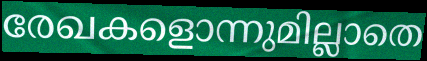
രേഖകളൊന്നുമില്ലാതെ